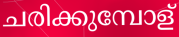
ചരിക്കുമ്പോള്